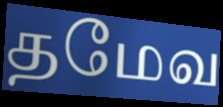
தமேவ